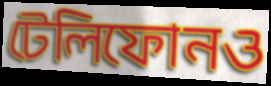
টেলিফোনও